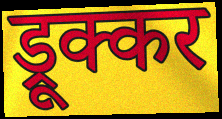
ड्रूक्कर